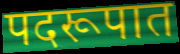
पदरूपात